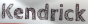
Kendrick